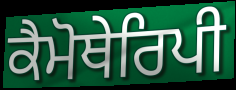
ਕੈਮੋਥੇਰਿਪੀ